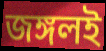
জঙ্গলই